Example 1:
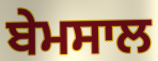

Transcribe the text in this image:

ਬੇਮਸਾਲ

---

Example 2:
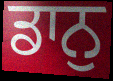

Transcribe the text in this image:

ਡਾਨੁ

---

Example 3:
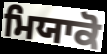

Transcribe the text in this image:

ਮਿਯਾਕੋ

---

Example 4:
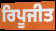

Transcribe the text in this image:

ਰਿਪੂਜੀਤ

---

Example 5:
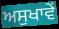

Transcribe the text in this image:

ਅਸੁਖਾਵੇਂ